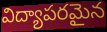
విద్యాపరమైన